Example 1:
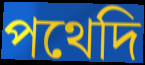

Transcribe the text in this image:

পথেদি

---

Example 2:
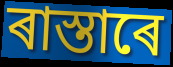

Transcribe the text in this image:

ৰাস্তাৰে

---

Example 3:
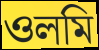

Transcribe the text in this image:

ওলমি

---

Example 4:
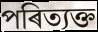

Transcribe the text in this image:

পৰিত্যক্ত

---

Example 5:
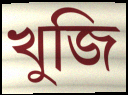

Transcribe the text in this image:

খুজি